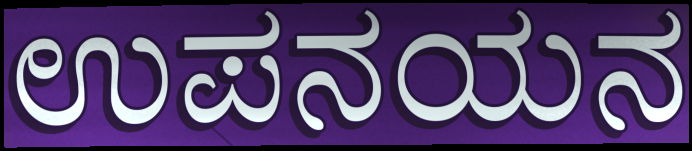
ಉಪನಯನ